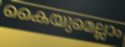
കൈയുമെല്ലാം